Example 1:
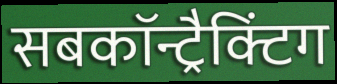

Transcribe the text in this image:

सबकॉन्ट्रैक्टिंग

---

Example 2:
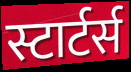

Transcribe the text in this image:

स्टार्टर्स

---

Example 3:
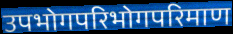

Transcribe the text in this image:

उपभोगपरिभोगपरिमाण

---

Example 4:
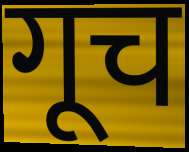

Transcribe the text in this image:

गूच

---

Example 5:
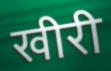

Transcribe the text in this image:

खीरी